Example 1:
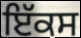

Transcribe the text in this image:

ਇੱਕਸ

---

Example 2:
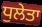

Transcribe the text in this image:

ਧੁਲੇਤਾ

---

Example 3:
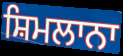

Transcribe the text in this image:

ਸ਼ਿਮਲਾਨਾ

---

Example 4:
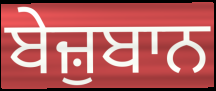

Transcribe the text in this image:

ਬੇਜ਼ੁਬਾਨ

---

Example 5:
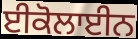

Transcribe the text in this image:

ਈਕੋਲਾਈਨ